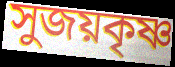
সুজয়কৃষ্ণ